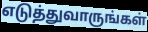
எடுத்துவாருங்கள்